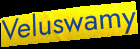
Veluswamy